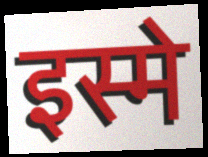
इस्मे